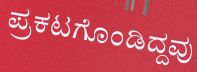
ಪ್ರಕಟಗೊಂಡಿದ್ದವು